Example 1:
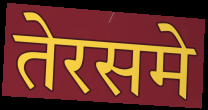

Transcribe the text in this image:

तेरसमे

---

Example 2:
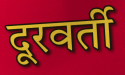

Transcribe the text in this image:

दूरवर्ती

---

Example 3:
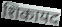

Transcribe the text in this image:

शिकायद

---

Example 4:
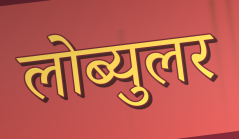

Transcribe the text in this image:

लोब्युलर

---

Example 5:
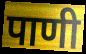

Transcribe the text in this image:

पाणी